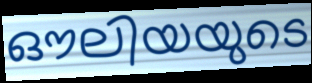
ഔലിയയുടെ